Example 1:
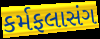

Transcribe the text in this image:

કર્મફલાસંગ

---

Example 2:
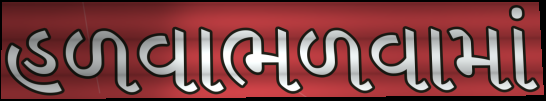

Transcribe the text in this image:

હળવાભળવામાં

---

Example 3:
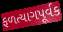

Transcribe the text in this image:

ફળત્યાગપૂર્વક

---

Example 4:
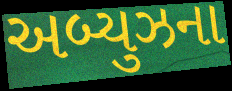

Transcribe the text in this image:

અબ્યુઝના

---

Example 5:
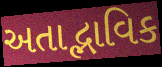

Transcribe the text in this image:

અતાદ્ભાવિક